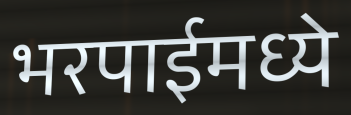
भरपाईमध्ये